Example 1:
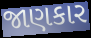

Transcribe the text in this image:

જાણકાર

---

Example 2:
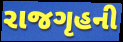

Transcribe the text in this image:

રાજગૃહની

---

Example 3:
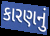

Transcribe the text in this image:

કારણનું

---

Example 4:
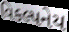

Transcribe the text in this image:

વિકલ્પનેય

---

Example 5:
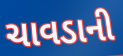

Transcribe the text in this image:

ચાવડાની